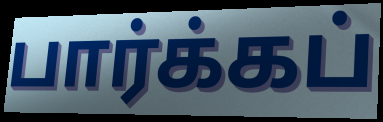
பார்க்கப்